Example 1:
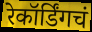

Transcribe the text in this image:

रेकॉर्डिंगचं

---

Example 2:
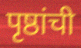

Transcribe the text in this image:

पृष्ठांची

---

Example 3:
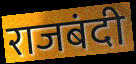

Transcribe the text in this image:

राजबंदी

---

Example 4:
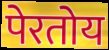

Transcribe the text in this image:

पेरतोय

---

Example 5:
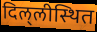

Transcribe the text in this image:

दिल्लीस्थित